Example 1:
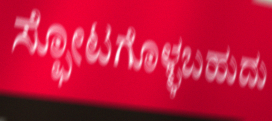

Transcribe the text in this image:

ಸ್ಫೋಟಗೊಳ್ಳಬಹುದು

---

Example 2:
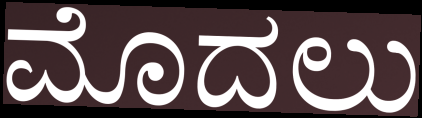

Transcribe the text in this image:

ಮೊದಲು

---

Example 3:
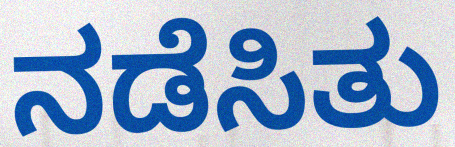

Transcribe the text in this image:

ನಡೆಸಿತು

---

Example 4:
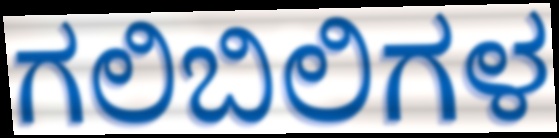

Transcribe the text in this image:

ಗಲಿಬಿಲಿಗಳ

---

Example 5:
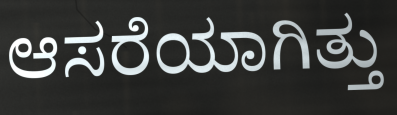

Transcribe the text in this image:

ಆಸರೆಯಾಗಿತ್ತು